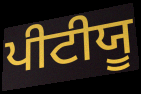
ਪੀਟੀਯੂ